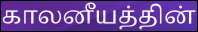
காலனீயத்தின்